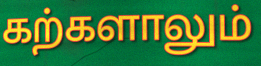
கற்களாலும்